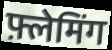
फ़्लेमिंग